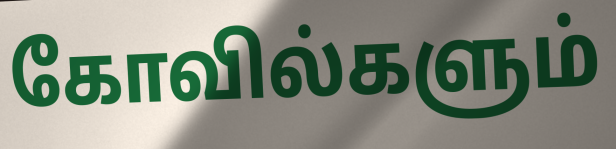
கோவில்களும்